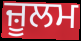
ਜ਼ੂਲਮ